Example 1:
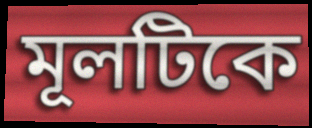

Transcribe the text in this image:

মূলটিকে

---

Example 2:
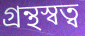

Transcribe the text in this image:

গ্রন্থস্বত্ব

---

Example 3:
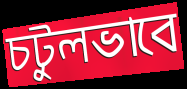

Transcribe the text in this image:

চটুলভাবে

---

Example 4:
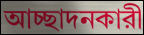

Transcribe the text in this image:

আচ্ছাদনকারী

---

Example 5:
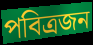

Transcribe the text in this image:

পবিত্রজন